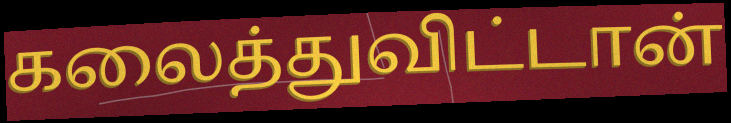
கலைத்துவிட்டான்